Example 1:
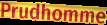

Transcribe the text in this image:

Prudhomme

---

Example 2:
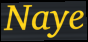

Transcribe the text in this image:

Naye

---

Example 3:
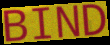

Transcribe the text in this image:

BIND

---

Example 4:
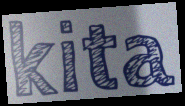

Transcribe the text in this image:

kita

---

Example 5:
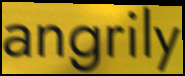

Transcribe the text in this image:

angrily